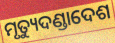
ମୃତ୍ୟୁଦଣ୍ଡାଦେଶ